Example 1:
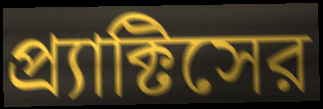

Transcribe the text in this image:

প্র্যাক্টিসের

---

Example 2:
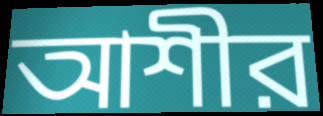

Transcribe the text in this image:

আশীর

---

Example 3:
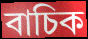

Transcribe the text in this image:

বাচিক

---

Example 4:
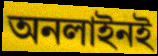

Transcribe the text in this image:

অনলাইনই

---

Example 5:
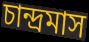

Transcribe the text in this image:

চান্দ্রমাস